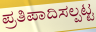
ಪ್ರತಿಪಾದಿಸಲ್ಪಟ್ಟ